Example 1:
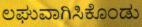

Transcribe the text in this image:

ಲಘುವಾಗಿಸಿಕೊಂಡು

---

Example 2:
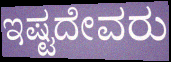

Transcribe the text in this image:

ಇಷ್ಟದೇವರು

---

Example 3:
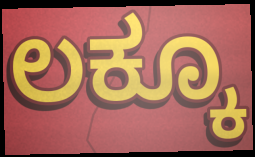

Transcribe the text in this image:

ಲಕ್ಕೂ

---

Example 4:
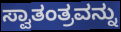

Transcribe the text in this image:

ಸ್ವಾತಂತ್ರವನ್ನು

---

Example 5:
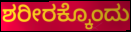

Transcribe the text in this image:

ಶರೀರಕ್ಕೊಂದು